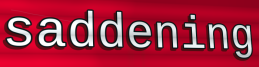
saddening